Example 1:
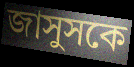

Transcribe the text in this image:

জাসুসকে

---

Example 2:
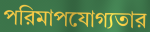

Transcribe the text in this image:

পরিমাপযোগ্যতার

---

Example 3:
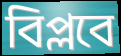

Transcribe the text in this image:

বিপ্লবে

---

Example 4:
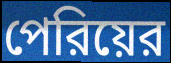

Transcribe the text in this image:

পেরিয়ের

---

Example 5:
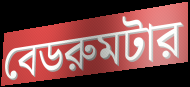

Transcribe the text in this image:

বেডরুমটার